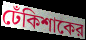
ঢেঁকিশাকের